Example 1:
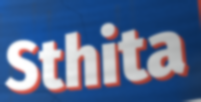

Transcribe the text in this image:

Sthita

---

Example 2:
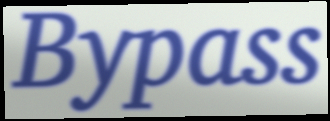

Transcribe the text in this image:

Bypass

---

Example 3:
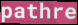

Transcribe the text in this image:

pathre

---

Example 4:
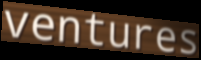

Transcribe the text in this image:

ventures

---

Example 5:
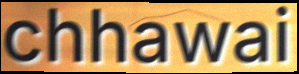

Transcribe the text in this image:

chhawai